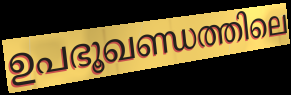
ഉപഭൂഖണ്ഡത്തിലെ